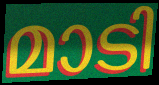
മാടി